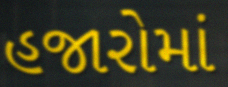
હજારોમાં